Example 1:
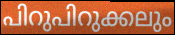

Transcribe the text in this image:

പിറുപിറുക്കലും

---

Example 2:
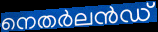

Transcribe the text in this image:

നെതർലൻഡ്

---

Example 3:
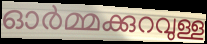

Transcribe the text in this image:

ഓർമ്മക്കുറവുള്ള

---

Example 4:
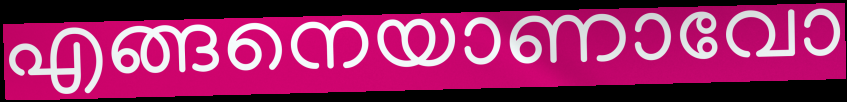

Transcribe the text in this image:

എങ്ങനെയാണാവോ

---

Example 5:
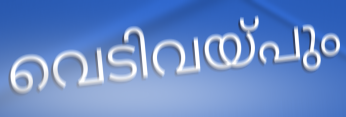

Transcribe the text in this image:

വെടിവയ്പും